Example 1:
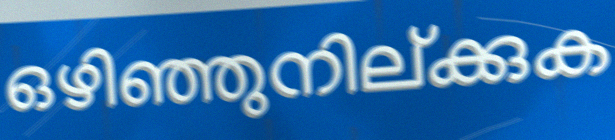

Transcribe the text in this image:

ഒഴിഞ്ഞുനില്ക്കുക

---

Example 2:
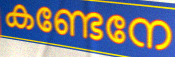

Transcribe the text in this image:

കണ്ടേനേ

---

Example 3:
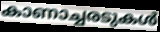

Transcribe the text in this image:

കാണാച്ചരടുകൾ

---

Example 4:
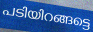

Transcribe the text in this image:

പടിയിറങ്ങട്ടെ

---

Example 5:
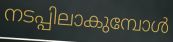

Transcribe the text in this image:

നടപ്പിലാകുമ്പോൾ